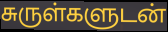
சுருள்களுடன்